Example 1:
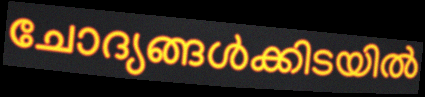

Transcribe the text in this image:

ചോദ്യങ്ങൾക്കിടയിൽ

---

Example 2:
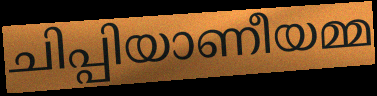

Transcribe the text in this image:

ചിപ്പിയാണീയമ്മ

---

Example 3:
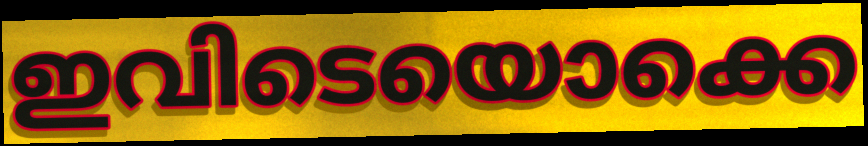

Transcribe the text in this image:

ഇവിടെയൊക്കെ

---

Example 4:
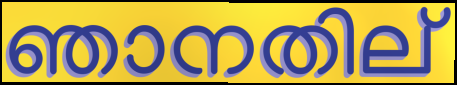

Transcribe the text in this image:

ഞാനതില്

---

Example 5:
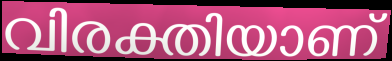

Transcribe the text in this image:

വിരക്തിയാണ്